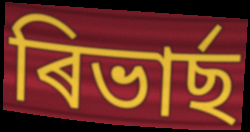
ৰিভাৰ্ছ